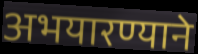
अभयारण्याने